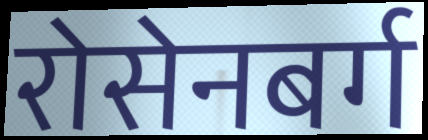
रोसेनबर्ग